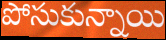
పోసుకున్నాయి